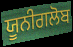
ਯੂਨੀਗਲੋਬ